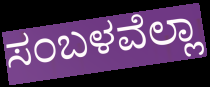
ಸಂಬಳವೆಲ್ಲಾ